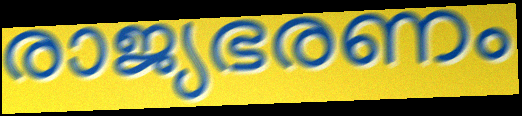
രാജ്യഭരണം